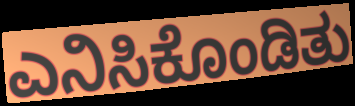
ಎನಿಸಿಕೊಂಡಿತು